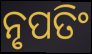
ନୃପତିଂ